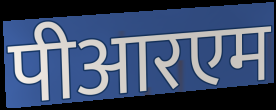
पीआरएम